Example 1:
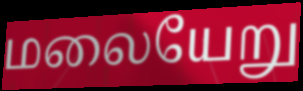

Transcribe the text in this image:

மலையேறு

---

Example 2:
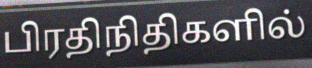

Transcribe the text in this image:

பிரதிநிதிகளில்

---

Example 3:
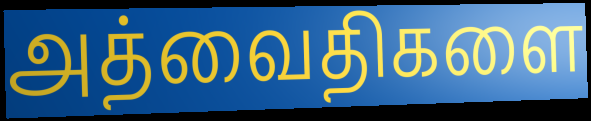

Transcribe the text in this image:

அத்வைதிகளை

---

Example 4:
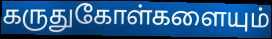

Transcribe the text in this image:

கருதுகோள்களையும்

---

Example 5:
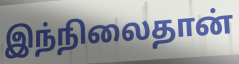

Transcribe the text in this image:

இந்நிலைதான்